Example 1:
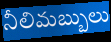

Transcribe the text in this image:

నీలిమబ్బులు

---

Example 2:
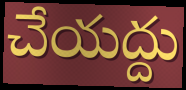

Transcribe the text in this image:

చేయద్దు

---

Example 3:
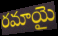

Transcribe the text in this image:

రమాయై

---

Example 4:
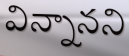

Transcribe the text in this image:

విన్నానని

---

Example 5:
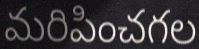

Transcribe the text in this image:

మరిపించగల